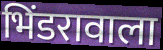
भिंडरावाला